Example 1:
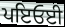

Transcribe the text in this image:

ਪਇਓਈ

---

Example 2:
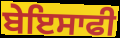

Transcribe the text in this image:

ਬੇਇਸਾਫੀ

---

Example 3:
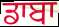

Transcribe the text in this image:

ਡਾਬਾ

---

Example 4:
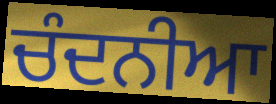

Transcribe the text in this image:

ਚੰਦਨੀਆ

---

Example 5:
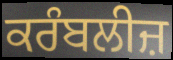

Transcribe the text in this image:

ਕਰੰਬਲੀਜ਼